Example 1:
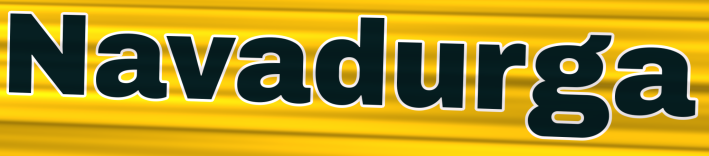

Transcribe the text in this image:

Navadurga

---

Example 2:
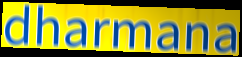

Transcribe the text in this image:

dharmana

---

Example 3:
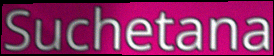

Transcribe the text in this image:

Suchetana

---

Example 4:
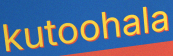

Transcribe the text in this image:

kutoohala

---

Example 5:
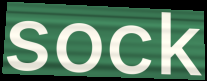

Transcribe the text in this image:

sock